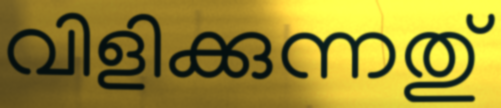
വിളിക്കുന്നതു്